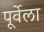
पूर्वेला